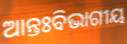
ଆନ୍ତଃବିଭାଗୀୟ